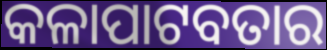
କଳାପାଟବତାର